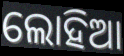
ଲୋହିଆ